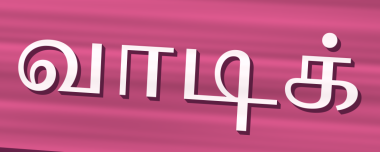
வாடிக்